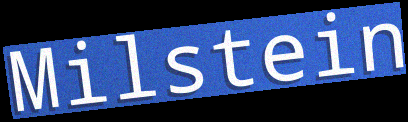
Milstein